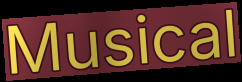
Musical